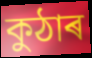
কুঠাৰ